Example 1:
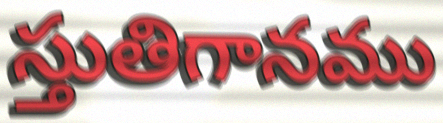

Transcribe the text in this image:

స్తుతిగానము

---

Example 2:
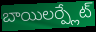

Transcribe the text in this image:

బాయిలర్ప్లేట్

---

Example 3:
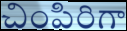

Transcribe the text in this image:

చింపిరిగా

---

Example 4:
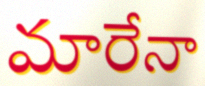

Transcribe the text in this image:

మారేనా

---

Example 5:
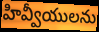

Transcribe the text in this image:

హివ్వీయులను